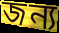
জন্য